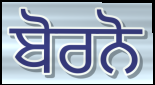
ਬੋਰਨੋ